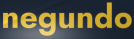
negundo